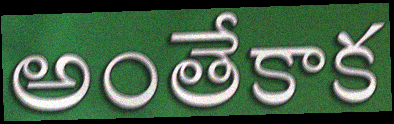
అంతేకాక